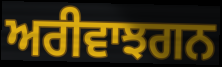
ਅਰੀਵਾਝਗਨ